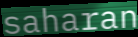
saharan